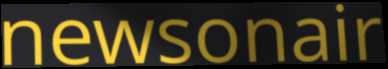
newsonair